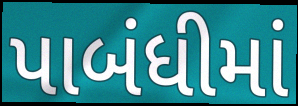
પાબંધીમાં